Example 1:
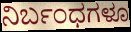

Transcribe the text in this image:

ನಿರ್ಬಂಧಗಳೂ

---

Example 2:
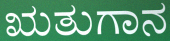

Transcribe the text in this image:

ಋತುಗಾನ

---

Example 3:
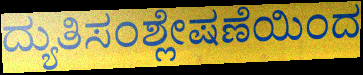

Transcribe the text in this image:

ದ್ಯುತಿಸಂಶ್ಲೇಷಣೆಯಿಂದ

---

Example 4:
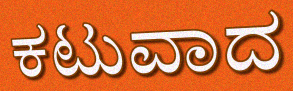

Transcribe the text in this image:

ಕಟುವಾದ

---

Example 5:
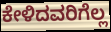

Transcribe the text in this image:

ಕೇಳಿದವರಿಗೆಲ್ಲ